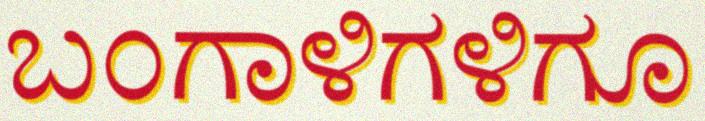
ಬಂಗಾಳಿಗಳಿಗೂ